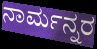
ನಾರ್ಮನ್ನರ